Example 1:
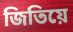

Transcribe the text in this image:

জিতিয়ে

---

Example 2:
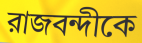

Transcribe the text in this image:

রাজবন্দীকে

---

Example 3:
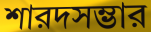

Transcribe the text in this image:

শারদসম্ভার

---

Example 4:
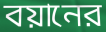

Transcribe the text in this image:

বয়ানের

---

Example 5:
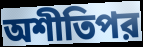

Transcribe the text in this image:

অশীতিপর